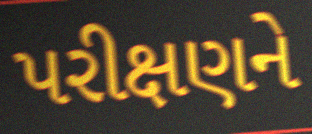
પરીક્ષણને